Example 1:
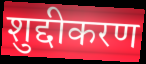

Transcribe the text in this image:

शुद्दीकरण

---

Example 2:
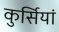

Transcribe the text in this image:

कुर्सियां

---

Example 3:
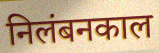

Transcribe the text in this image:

निलंबनकाल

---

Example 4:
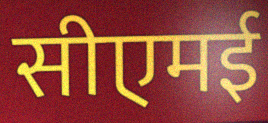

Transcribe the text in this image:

सीएमई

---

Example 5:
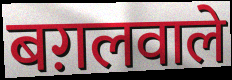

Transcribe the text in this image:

बग़लवाले